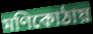
মণিকোঠায়